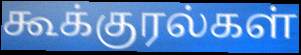
கூக்குரல்கள்